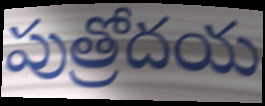
పుత్రోదయ